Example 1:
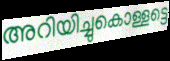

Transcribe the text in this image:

അറിയിച്ചുകൊള്ളട്ടെ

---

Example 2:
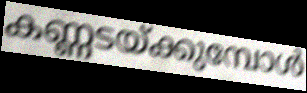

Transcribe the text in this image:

കണ്ണടയ്ക്കുമ്പോൾ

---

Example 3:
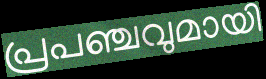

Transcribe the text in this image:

പ്രപഞ്ചവുമായി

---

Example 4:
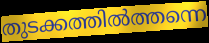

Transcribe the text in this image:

തുടക്കത്തിൽത്തന്നെ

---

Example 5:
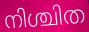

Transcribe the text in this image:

നിശ്ചിത